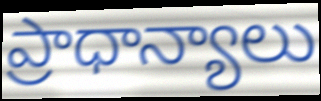
ప్రాధాన్యాలు